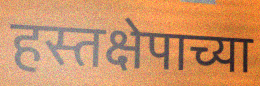
हस्तक्षेपाच्या